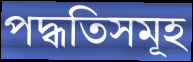
পদ্ধতিসমূহ